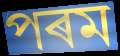
পৰম